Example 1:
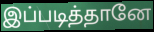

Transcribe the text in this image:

இப்படித்தானே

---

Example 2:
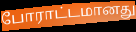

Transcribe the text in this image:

போராட்டமானது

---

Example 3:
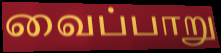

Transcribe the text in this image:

வைப்பாறு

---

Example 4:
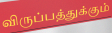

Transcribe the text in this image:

விருப்பத்துக்கும்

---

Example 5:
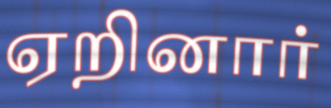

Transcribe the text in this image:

ஏறினார்